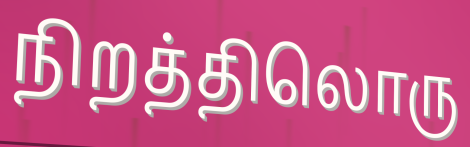
நிறத்திலொரு